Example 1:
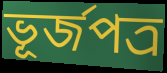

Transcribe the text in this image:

ভূর্জপত্র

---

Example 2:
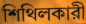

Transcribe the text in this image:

শিথিলকারী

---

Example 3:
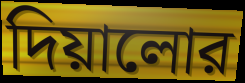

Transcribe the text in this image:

দিয়ালোর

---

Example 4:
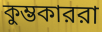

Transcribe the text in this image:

কুম্ভকাররা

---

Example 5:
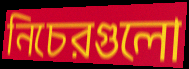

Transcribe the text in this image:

নিচেরগুলো